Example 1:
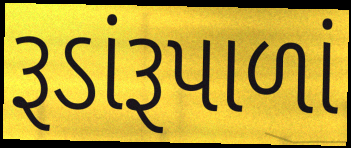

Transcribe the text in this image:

રૂડાંરૂપાળાં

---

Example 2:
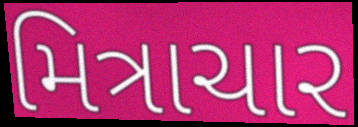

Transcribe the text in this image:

મિત્રાચાર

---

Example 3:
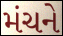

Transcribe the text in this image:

મંચને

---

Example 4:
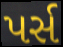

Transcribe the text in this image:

પર્સ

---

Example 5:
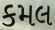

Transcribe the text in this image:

કમલ